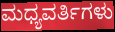
ಮಧ್ಯವರ್ತಿಗಳು